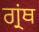
ਗ੍ਰਂਥ